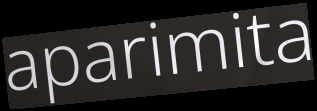
aparimita